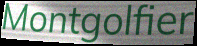
Montgolfier